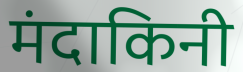
मंदाकिनी